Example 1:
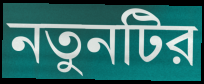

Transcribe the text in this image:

নতুনটির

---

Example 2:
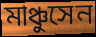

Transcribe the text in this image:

মাঞ্চুসেন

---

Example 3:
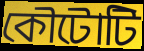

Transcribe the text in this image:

কৌটোটি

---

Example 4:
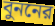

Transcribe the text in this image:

বুননের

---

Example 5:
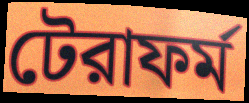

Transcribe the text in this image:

টেরাফর্ম